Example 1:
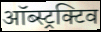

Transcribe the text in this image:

ऑब्स्ट्रक्टिव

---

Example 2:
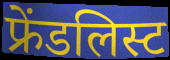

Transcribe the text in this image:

फ्रेंडलिस्ट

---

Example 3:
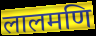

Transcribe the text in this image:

लालमणि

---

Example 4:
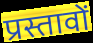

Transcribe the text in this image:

प्रस्‍तावों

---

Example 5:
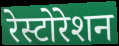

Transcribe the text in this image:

रेस्टोरेशन